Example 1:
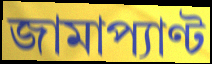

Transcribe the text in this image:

জামাপ্যাণ্ট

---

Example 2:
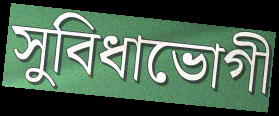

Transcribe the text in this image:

সুবিধাভোগী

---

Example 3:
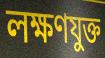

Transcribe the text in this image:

লক্ষণযুক্ত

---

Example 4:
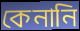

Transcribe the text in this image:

কেনানি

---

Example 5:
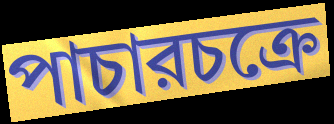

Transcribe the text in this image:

পাচারচক্রে